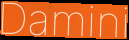
Damini